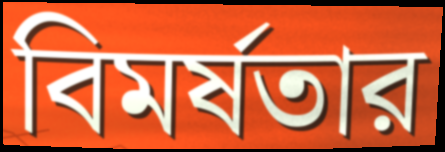
বিমর্ষতার